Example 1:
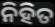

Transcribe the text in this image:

ନିହିତ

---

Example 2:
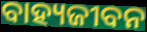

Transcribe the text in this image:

ବାହ୍ୟଜୀବନ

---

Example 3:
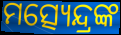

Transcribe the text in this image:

ମତ୍ସ୍ୟେନ୍ଦ୍ରଙ୍କ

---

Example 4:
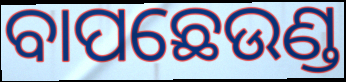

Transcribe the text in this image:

ବାପଛେଉଣ୍ଡ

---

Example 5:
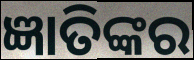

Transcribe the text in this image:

ଜ୍ଞାତିଙ୍କର